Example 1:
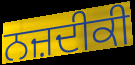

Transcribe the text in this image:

ਨਜ਼ਦੀਕੀ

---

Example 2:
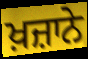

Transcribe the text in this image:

ਖ਼ਜ਼ਾਨੇ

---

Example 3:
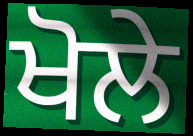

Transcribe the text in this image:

ਖੋਲੇ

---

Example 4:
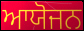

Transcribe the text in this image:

ਆਯੋਜਨ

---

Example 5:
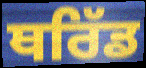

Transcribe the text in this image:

ਥਰਿੱਡ